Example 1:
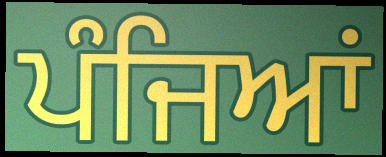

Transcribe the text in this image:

ਪੰਜਿਆਂ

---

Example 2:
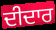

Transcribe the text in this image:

ਦੀਦਾਰ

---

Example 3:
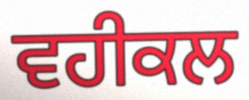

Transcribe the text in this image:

ਵਹੀਕਲ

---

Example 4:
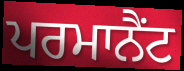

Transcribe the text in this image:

ਪਰਮਾਨੈਂਟ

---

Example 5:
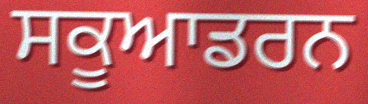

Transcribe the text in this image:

ਸਕੂਆਡਰਨ